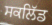
ਸਕਲਿੱਡ